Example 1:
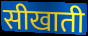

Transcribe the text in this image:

सीखाती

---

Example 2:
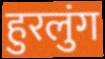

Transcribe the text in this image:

हुरलुंग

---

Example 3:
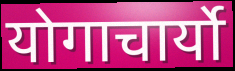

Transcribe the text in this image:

योगाचार्यो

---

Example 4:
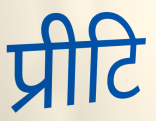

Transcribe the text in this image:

प्रीटि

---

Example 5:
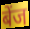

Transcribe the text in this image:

बेंज